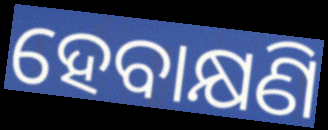
ହେବାକ୍ଷଣି